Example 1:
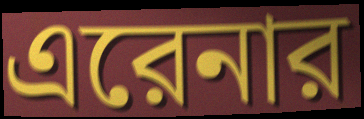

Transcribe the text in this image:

এরেনার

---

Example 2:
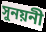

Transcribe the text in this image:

সুনয়নী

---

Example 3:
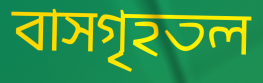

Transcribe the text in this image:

বাসগৃহতল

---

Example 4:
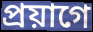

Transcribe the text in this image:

প্রয়াগে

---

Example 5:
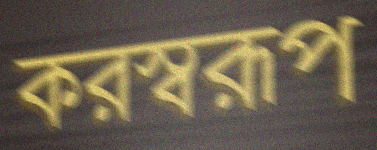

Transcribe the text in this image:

করস্বরূপ